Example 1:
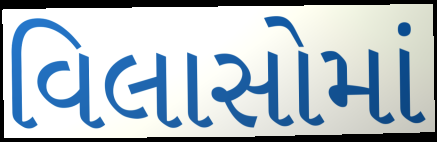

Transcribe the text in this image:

વિલાસોમાં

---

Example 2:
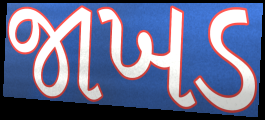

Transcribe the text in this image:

જાખડ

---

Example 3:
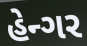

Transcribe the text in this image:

હેન્ગર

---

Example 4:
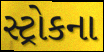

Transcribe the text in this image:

સ્ટ્રોકના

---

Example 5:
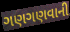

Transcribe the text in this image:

ગણગણવાની